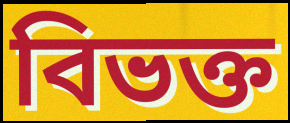
বিভক্ত